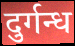
दुर्गन्ध